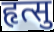
हृत्सु